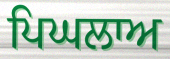
ਪਿਘਲਾਅ